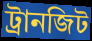
ট্রানজিট